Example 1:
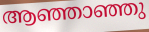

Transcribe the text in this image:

ആഞ്ഞാഞ്ഞു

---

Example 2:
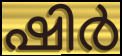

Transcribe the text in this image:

ഷിർ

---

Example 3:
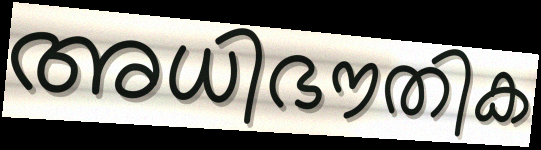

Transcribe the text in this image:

അധിഭൗതിക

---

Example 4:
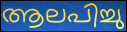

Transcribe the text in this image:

ആലപിച്ചു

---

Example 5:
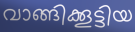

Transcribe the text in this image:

വാങ്ങിക്കൂട്ടിയ